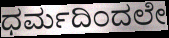
ಧರ್ಮದಿಂದಲೇ